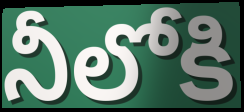
నీలోకి